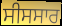
ਸੀਸਸਾਰ